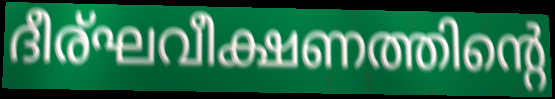
ദീര്ഘവീക്ഷണത്തിന്റെ